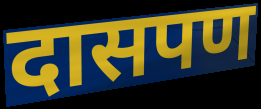
दासपण